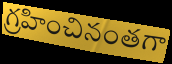
గ్రహించినంతగా